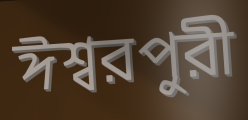
ঈশ্বরপুরী